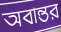
অবান্তর